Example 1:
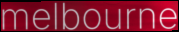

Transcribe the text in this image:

melbourne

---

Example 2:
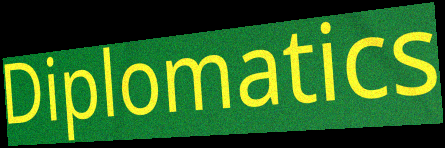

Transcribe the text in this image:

Diplomatics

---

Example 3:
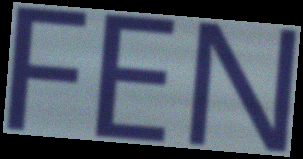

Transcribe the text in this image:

FEN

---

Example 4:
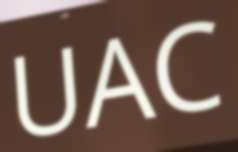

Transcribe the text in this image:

UAC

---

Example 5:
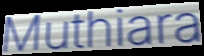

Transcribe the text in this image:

Muthiara